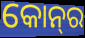
କୋନ୍‌ର